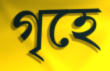
গৃহে